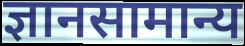
ज्ञानसामान्य